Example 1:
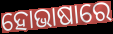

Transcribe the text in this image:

ହୋଭାଷାରେ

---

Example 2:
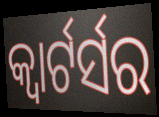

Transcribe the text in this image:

କ୍ବାର୍ଟର୍ସର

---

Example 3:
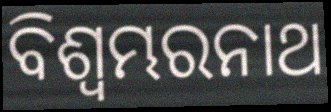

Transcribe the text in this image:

ବିଶ୍ୱମ୍ଭରନାଥ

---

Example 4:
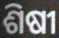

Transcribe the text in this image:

ଶିଷୀ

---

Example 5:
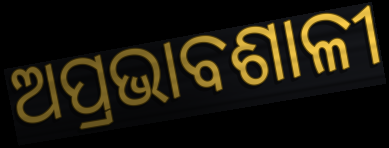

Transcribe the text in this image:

ଅପ୍ରଭାବଶାଳୀ